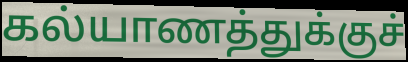
கல்யாணத்துக்குச்